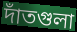
দাঁতগুলা